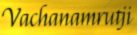
Vachanamrutji